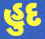
હુદ